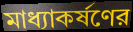
মাধ্যাকর্ষণের